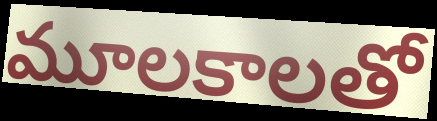
మూలకాలతో